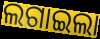
ଲଗାଇଲା